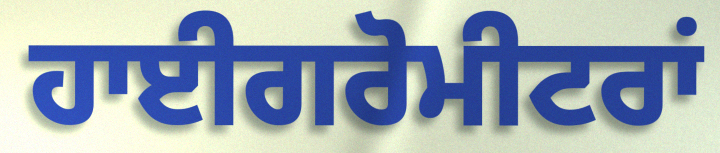
ਹਾਈਗਰੋਮੀਟਰਾਂ